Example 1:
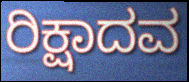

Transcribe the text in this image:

ರಿಕ್ಷಾದವ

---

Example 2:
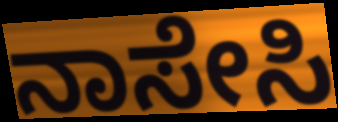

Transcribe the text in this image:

ನಾಸೇಸಿ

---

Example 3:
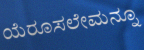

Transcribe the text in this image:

ಯೆರೂಸಲೇಮನ್ನೂ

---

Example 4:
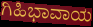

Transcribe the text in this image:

ಗಿಹಿಭಾವಾಯ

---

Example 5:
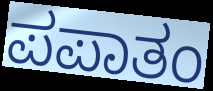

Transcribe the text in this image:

ಪಪಾತಂ